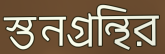
স্তনগ্রন্থির